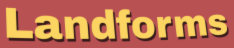
Landforms